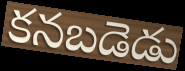
కనబడెడు